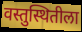
वस्तुस्थितीला